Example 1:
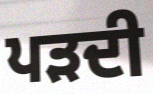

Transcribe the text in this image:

ਪੜਦੀ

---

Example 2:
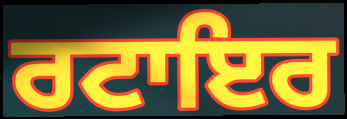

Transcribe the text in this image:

ਰਟਾਇਰ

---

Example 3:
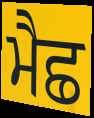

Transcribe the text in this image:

ਮੈਛ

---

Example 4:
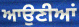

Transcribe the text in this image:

ਆਉਣੀਆਂ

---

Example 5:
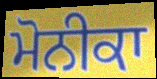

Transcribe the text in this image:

ਮੋਨੀਕਾ